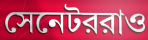
সেনেটররাও